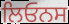
ਲਿਓਨਸ